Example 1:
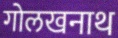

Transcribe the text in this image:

गोलखनाथ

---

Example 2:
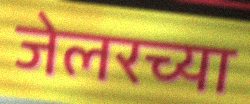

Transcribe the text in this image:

जेलरच्या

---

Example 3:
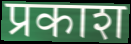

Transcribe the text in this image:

प्रकाश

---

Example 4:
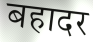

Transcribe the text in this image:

बहादर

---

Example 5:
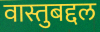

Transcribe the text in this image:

वास्तुबद्दल